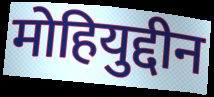
मोहियुद्दीन